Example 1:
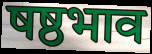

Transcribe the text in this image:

षष्ठभाव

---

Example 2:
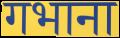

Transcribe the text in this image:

गभाना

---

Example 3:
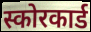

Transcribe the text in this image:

स्कोरकार्ड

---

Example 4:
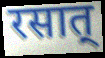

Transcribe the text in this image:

रसात्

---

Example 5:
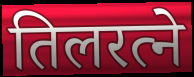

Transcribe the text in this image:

तिलरत्ने